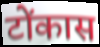
टोंकास